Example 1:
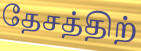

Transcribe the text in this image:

தேசத்திற்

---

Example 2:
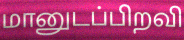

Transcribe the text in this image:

மானுடப்பிறவி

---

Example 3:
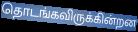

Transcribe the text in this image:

தொடங்கவிருக்கின்றன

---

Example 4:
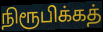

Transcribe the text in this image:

நிரூபிக்கத்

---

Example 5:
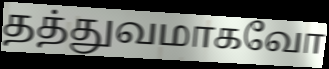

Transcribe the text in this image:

தத்துவமாகவோ